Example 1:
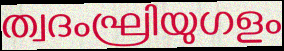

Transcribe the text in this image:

ത്വദംഘ്രിയുഗളം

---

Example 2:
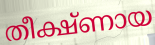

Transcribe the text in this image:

തീക്ഷ്ണായ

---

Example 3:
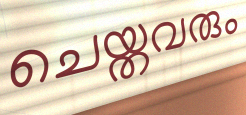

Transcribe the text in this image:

ചെയ്തവരും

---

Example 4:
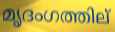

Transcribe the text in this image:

മൃദംഗത്തില്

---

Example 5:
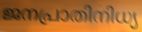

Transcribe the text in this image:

ജനപ്രാതിനിധ്യ